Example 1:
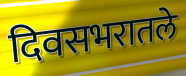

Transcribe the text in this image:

दिवसभरातले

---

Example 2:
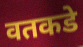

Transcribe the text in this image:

वतकडे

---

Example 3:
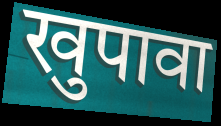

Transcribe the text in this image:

खुपावा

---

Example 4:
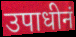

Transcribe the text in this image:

उपाधीनं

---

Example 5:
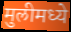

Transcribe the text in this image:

मुलीमध्ये